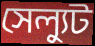
সেল্যুট